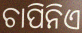
ଚାପିନିଏ